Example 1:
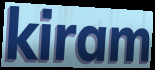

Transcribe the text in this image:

kiram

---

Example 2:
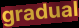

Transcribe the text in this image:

gradual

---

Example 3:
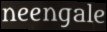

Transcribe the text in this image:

neengale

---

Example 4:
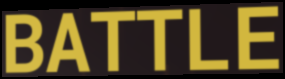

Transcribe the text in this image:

BATTLE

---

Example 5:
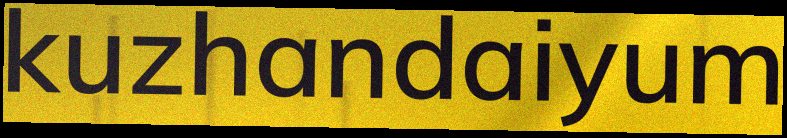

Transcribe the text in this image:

kuzhandaiyum